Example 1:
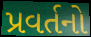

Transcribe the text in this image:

પ્રવર્તનો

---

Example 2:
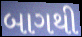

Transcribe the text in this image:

બાગથી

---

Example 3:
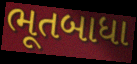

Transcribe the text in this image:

ભૂતબાધા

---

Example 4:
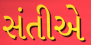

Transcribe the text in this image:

સંતીએ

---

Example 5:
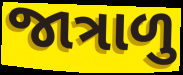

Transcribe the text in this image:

જાત્રાળુ